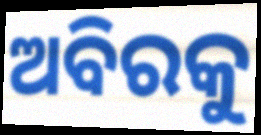
ଅବିରକୁ